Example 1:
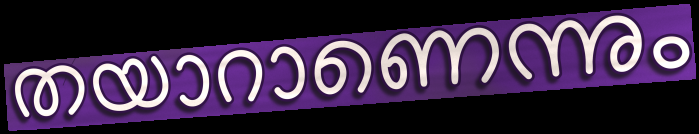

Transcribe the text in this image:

തയാറാണെന്നും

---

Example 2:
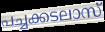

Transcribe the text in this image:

പച്ചക്കടലാസ്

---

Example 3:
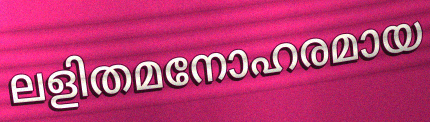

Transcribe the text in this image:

ലളിതമനോഹരമായ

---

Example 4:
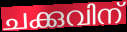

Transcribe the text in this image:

ചക്കുവിന്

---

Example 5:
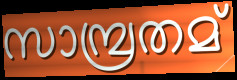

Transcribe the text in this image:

സാമ്പ്രതമ്